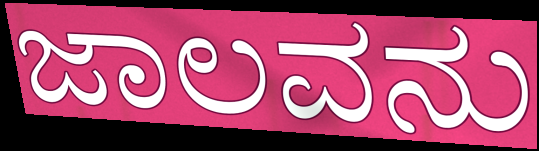
ಜಾಲವನು